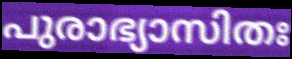
പുരാഭ്യാസിതഃ